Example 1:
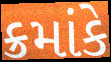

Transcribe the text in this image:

ક્રમાંકે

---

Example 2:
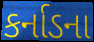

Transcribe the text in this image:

કર્નાડના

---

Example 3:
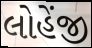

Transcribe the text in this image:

લોહેંજી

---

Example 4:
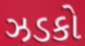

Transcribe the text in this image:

ઝડકો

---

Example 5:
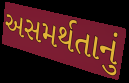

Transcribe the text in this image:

અસમર્થતાનું